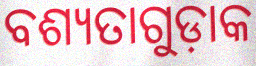
ବଶ୍ୟତାଗୁଡ଼ାକ